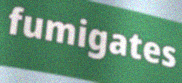
fumigates